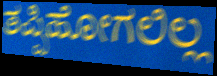
ತಪ್ಪಿಹೋಗಲಿಲ್ಲ